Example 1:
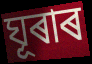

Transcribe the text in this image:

ঘূৰাৰ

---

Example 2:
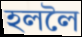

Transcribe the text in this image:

হললৈ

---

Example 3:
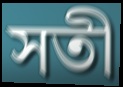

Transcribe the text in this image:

সতী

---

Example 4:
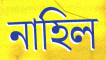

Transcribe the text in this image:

নাহিল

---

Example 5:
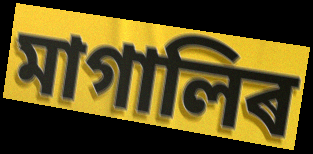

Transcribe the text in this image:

মাগালিৰ